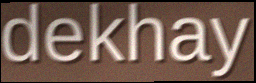
dekhay